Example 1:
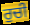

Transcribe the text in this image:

ਰੁਚੀ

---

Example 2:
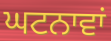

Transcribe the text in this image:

ਘਟਨਾਵਾਂ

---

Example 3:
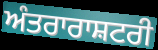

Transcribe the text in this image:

ਅੰਤਰਾਰਾਸ਼ਟਰੀ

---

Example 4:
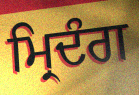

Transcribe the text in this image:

ਮ੍ਰਿਦੰਗ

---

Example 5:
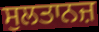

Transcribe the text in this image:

ਸੁਲਤਾਨਜ਼